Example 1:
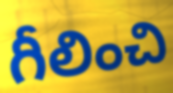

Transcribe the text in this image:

గీలించి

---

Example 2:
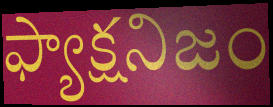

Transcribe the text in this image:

ఫ్యాక్షనిజం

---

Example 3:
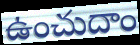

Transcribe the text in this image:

ఉంచుదాం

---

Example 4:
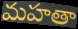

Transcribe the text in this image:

మహతా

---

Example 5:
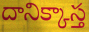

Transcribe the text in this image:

దానిక్కాస్త